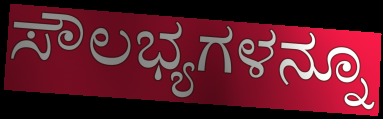
ಸೌಲಭ್ಯಗಳನ್ನೂ